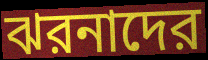
ঝরনাদের